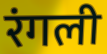
रंगली